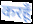
करहूँ